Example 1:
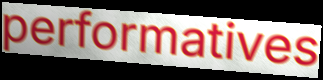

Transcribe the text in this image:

performatives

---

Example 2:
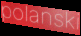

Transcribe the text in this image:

polanski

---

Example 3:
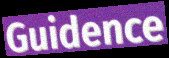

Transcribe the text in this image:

Guidence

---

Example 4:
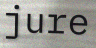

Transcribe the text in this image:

jure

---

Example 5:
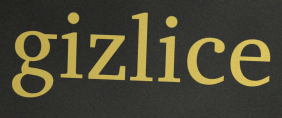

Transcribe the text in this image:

gizlice